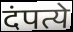
दंपत्ये